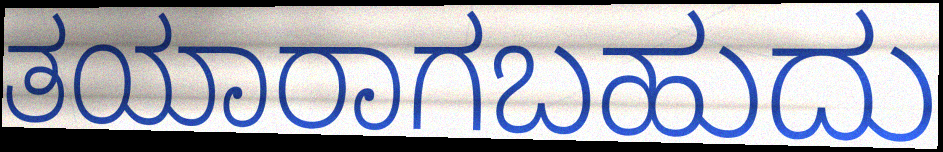
ತಯಾರಾಗಬಹುದು